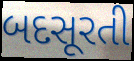
બદસૂરતી